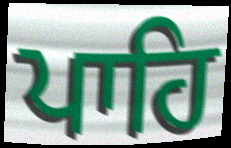
ਪਾਹਿ